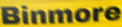
Binmore